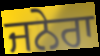
ਜਨੇਰਾ